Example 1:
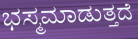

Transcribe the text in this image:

ಭಸ್ಮಮಾಡುತ್ತದೆ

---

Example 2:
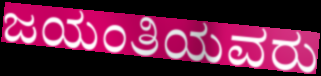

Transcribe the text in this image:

ಜಯಂತಿಯವರು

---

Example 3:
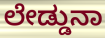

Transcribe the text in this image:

ಲೇಡ್ಡುನಾ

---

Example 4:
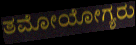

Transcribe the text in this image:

ತಮೋಯೋಗ್ಯರು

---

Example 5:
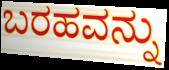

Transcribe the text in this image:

ಬರಹವನ್ನು